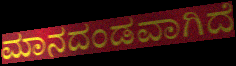
ಮಾನದಂಡವಾಗಿದೆ